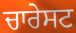
ਚਾਰੇਸਟ